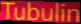
Tubulin